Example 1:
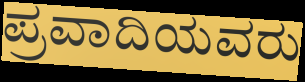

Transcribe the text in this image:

ಪ್ರವಾದಿಯವರು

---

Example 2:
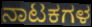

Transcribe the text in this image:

ನಾಟಕಗಳ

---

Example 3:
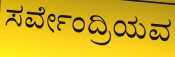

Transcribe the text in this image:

ಸರ್ವೇಂದ್ರಿಯವ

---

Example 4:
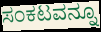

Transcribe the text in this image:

ಸಂಕಟವನ್ನೂ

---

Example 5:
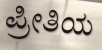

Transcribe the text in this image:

ಪ್ರೀತಿಯ